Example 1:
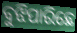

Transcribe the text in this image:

ବୁଝିପାରିଛେ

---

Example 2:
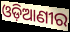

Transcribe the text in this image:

ଓଡ଼ିଆଣୀର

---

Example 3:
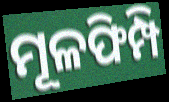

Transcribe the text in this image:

ମୂଳଫିମ୍ପି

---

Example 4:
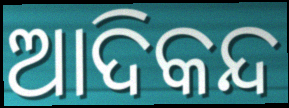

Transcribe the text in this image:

ଆଦିକନ୍ଦ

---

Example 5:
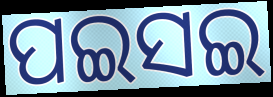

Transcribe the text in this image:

ପଇସଇ